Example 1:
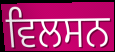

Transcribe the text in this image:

ਵਿਲਸਨ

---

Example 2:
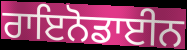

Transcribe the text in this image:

ਰਾਇਨੋਡਾਈਨ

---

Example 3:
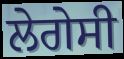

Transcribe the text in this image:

ਲੇਗੇਸੀ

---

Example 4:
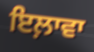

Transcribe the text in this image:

ਇਲ਼ਾਵਾ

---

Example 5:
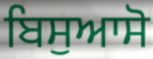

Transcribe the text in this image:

ਬਿਸੁਆਸੋ